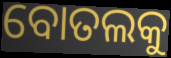
ବୋତଲକୁ